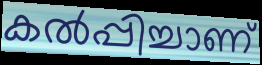
കൽപ്പിച്ചാണ്